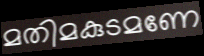
മതിമകുടമണേ